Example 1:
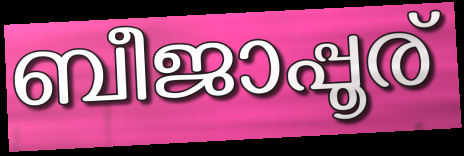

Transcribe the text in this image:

ബീജാപ്പൂര്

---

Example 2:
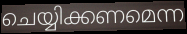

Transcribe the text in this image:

ചെയ്യിക്കണമെന്ന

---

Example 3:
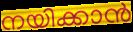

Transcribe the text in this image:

നയിക്കാൻ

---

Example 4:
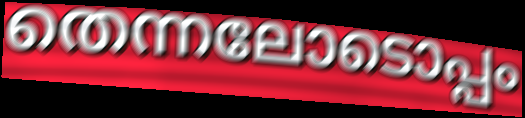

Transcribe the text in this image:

തെന്നലോടൊപ്പം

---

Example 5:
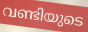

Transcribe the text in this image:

വണ്ടിയുടെ